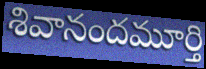
శివానందమూర్తి